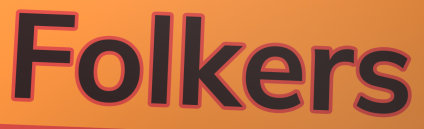
Folkers